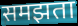
समझता